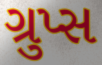
ગ્રુપ્સ